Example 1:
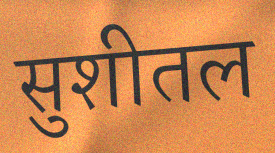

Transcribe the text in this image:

सुशीतल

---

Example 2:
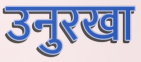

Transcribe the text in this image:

उनुरखा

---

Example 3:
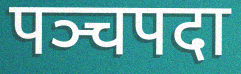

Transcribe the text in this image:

पञ्चपदा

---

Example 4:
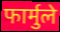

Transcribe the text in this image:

फार्मुले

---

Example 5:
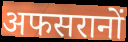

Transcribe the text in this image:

अफसरानों